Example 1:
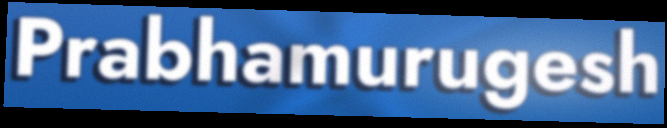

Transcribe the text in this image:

Prabhamurugesh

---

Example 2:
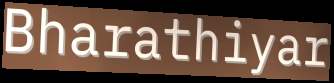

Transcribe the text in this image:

Bharathiyar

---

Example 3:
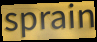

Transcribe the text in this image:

sprain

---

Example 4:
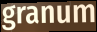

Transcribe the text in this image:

granum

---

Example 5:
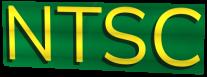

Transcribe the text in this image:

NTSC